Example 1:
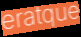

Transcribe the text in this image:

eratque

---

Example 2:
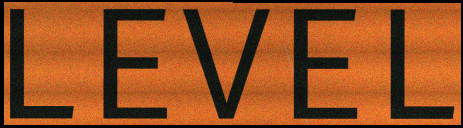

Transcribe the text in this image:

LEVEL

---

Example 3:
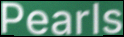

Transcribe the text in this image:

Pearls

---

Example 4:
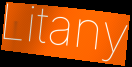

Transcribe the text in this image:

Litany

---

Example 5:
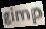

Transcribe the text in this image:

gimp